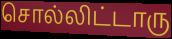
சொல்லிட்டாரு